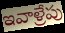
ఇవాళ్రేపు